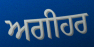
ਅਗੀਹਰ